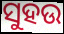
ସୁହଉ